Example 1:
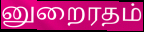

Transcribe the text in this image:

னுறைரதம்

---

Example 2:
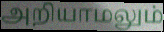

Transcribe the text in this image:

அறியாமலும்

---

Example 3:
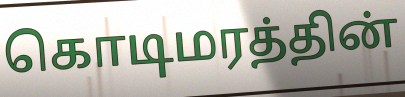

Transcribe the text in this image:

கொடிமரத்தின்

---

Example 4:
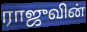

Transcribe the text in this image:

ராஜுவின்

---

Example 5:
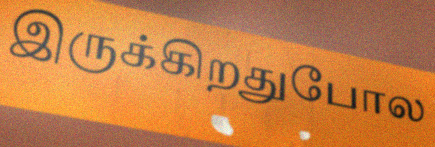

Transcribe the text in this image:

இருக்கிறதுபோல